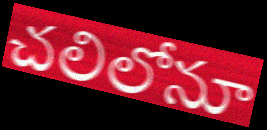
చలిలోనూ